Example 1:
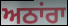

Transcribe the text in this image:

ਅਠਾਂਰਾ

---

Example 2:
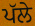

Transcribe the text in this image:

ਪੱਲੇ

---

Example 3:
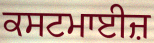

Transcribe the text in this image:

ਕਸਟਮਾਈਜ਼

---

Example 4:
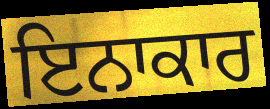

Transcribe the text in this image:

ਇਨਾਕਾਰ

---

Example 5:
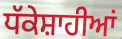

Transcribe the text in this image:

ਧੱਕੇਸ਼ਾਹੀਆਂ